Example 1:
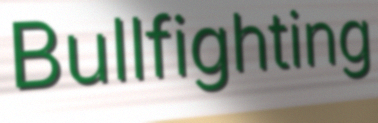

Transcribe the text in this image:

Bullfighting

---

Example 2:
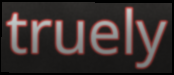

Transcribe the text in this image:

truely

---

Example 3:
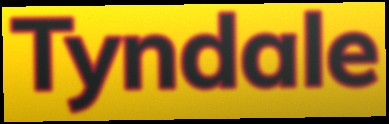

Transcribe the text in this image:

Tyndale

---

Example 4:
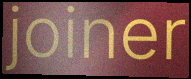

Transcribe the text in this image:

joiner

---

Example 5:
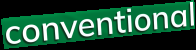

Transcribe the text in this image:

conventional